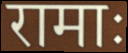
रामाः